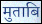
मुताबि